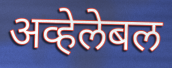
अव्हेलेबल